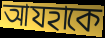
আযহাকে